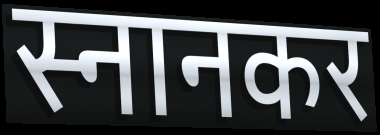
स्नानकर